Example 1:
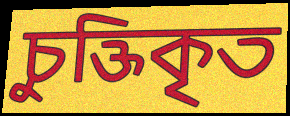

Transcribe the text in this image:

চুক্তিকৃত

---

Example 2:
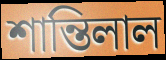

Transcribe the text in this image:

শান্তিলাল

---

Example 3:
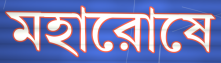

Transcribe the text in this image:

মহারোষে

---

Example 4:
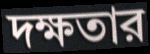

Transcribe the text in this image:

দক্ষতার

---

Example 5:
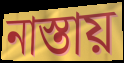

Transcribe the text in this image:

নাস্তায়